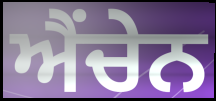
ਐਂਚੇਨ